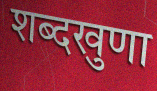
शब्दखुणा